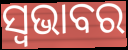
ସ୍ଵଭାବର